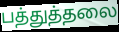
பத்துத்தலை